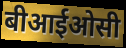
बीआईओसी